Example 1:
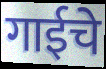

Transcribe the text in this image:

गाईचे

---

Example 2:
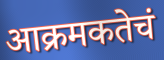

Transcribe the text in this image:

आक्रमकतेचं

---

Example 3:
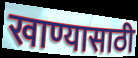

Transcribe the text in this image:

खाण्यासाठी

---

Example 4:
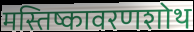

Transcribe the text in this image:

मस्तिष्कावरणशोथ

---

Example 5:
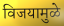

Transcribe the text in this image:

विजयामुळे